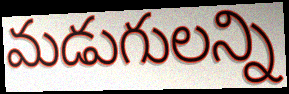
మడుగులన్ని